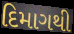
દિમાગથી